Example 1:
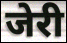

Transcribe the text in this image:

जेरी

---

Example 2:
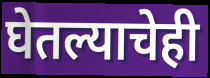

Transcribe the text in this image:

घेतल्याचेही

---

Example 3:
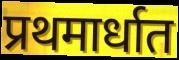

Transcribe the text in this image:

प्रथमार्धात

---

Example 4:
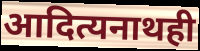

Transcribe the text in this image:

आदित्यनाथही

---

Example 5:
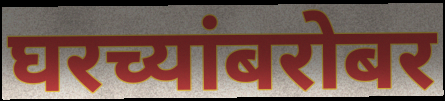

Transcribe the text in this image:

घरच्यांबरोबर